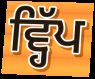
ਵ੍ਹਿੱਪ